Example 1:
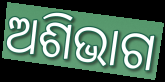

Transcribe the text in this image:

ଅଶିଭାଗ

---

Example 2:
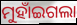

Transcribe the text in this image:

ମୁହାଁଇଗଲା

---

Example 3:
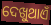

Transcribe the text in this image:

ଦେଖୁଥାଏଁ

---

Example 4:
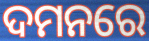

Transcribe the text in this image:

ଦମନରେ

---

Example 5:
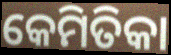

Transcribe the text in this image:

କେମିତିକା